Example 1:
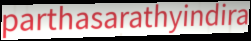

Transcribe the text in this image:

parthasarathyindira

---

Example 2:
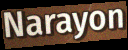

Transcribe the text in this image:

Narayon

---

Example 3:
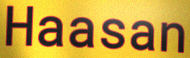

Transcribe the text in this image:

Haasan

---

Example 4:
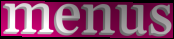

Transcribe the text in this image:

menus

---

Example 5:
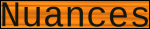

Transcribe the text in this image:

Nuances